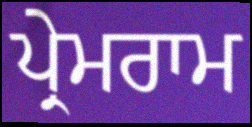
ਪ੍ਰੇਮਰਾਮ